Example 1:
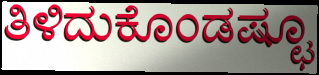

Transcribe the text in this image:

ತಿಳಿದುಕೊಂಡಷ್ಟೂ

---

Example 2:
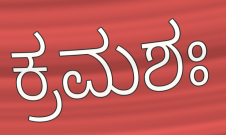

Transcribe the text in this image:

ಕ್ರಮಶಃ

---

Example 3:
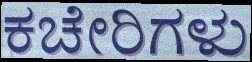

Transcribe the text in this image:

ಕಚೇರಿಗಳು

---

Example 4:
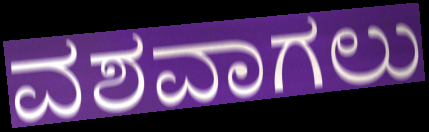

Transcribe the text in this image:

ವಶವಾಗಲು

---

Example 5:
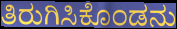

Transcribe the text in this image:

ತಿರುಗಿಸಿಕೊಂಡನು